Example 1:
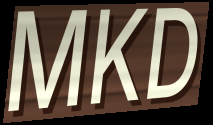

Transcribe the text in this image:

MKD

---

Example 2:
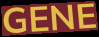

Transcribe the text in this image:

GENE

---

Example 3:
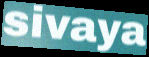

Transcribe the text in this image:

sivaya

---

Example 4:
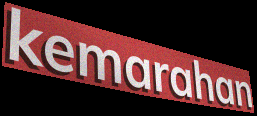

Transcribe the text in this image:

kemarahan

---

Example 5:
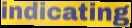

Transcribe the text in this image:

indicating